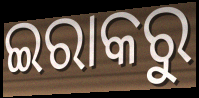
ଇରାକରୁ